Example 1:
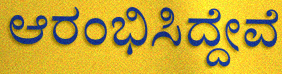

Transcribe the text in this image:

ಆರಂಭಿಸಿದ್ದೇವೆ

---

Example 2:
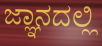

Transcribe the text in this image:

ಜ್ಞಾನದಲ್ಲಿ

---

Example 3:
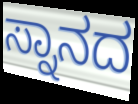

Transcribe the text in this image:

ಸ್ನಾನದ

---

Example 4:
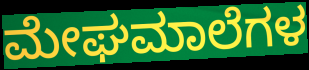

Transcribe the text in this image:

ಮೇಘಮಾಲೆಗಳ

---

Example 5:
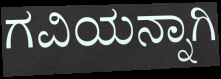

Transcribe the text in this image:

ಗವಿಯನ್ನಾಗಿ